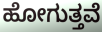
ಹೋಗುತ್ತವೆ